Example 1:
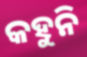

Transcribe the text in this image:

କହୁନି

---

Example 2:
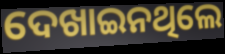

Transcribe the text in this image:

ଦେଖାଇନଥିଲେ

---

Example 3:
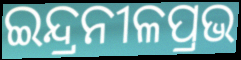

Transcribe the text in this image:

ଇନ୍ଦ୍ରନୀଳପ୍ରଭ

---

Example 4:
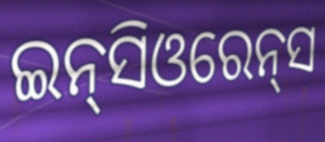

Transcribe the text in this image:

ଇନ୍‌ସିଓରେନ୍‌ସ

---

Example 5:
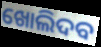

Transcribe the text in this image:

ଖୋଲିଦବ